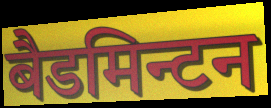
बैडमिन्टन